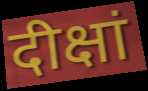
दीक्षां